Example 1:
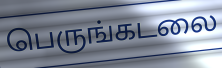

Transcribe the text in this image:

பெருங்கடலை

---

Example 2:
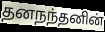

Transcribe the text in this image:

தனநந்தனின்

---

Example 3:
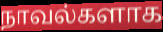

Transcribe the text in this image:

நாவல்களாக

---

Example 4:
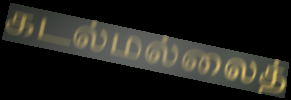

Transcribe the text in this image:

கடல்மல்லைத்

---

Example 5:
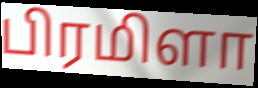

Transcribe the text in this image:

பிரமிளா